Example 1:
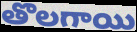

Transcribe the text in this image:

తొలగాయి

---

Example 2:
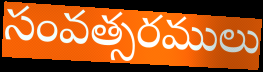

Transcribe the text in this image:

సంవత్సరములు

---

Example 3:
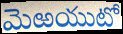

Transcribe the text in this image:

మెఱయుటో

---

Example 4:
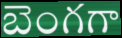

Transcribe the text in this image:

బెంగగా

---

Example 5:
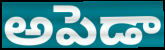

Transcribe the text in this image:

అపెడా